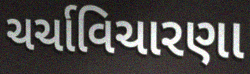
ચર્ચાવિચારણા